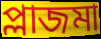
প্লাজমা